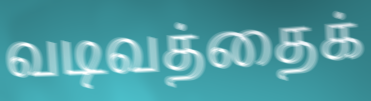
வடிவத்தைக்